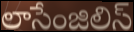
లాసేంజిలిస్